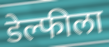
डेल्फीला